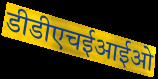
डीडीएचईआईओ